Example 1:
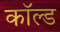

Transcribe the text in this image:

कॉल्ड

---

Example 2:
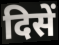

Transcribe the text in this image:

दिसें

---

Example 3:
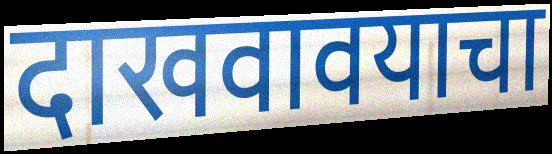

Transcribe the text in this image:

दाखवावयाचा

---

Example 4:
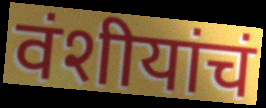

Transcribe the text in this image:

वंशीयांचं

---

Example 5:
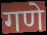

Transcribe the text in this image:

गणे